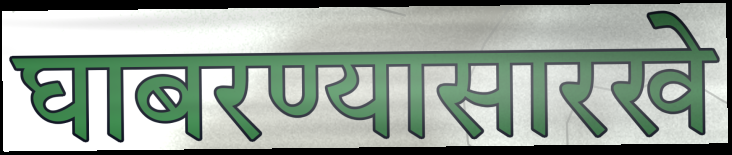
घाबरण्यासारखे